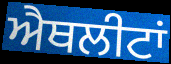
ਐਥਲੀਟਾਂ